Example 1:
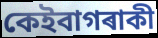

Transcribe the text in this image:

কেইবাগৰাকী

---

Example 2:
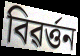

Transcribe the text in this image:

বিৱৰ্ত্তন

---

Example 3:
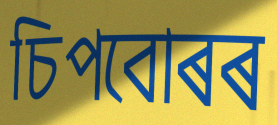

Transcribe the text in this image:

চিপবোৰৰ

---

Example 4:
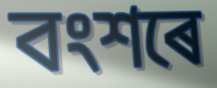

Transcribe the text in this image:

বংশৰে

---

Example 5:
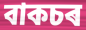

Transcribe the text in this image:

বাকচৰ